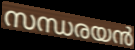
സന്ധരയൻ